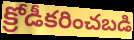
క్రోడీకరించబడి